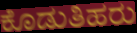
ಕೊಡುತಿಹರು